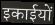
इकाईयों